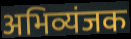
अभिव्यंजक